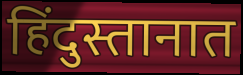
हिंदुस्तानात